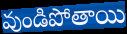
వుండిపోతాయి